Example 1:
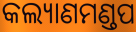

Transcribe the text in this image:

କଲ୍ୟାଣମଣ୍ଡପ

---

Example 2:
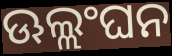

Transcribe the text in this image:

ଊଲ୍ଲଂଘନ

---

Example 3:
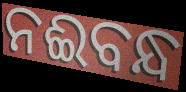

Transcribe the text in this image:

ନଈବନ୍ଧ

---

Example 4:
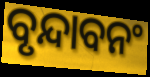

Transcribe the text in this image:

ବୃନ୍ଦାବନଂ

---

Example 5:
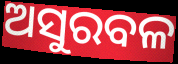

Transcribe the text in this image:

ଅସୁରବଳ